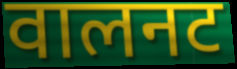
वालनट